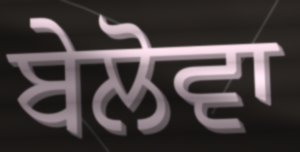
ਬੇਲੋਵਾ